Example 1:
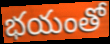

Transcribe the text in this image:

భయంతో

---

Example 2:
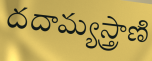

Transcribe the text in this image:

దదామ్యస్త్రాణి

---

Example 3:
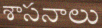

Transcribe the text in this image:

శాసనాలు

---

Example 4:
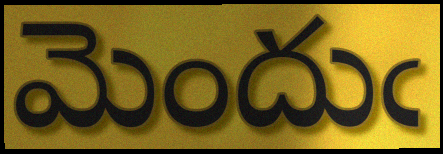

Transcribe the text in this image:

మెందుఁ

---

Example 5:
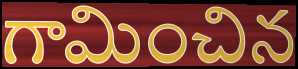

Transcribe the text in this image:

గామించిన